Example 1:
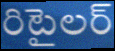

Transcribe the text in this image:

రిటైలర్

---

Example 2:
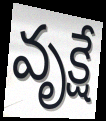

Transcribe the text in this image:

వృక్షే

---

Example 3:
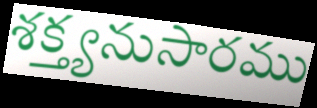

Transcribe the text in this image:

శక్త్యనుసారము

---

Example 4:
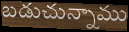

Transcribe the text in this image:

బడుచున్నాము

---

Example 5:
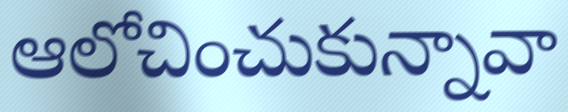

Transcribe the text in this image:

ఆలోచించుకున్నావా